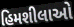
હિમશીલાઓ